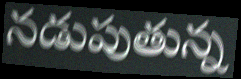
నడుపుతున్న